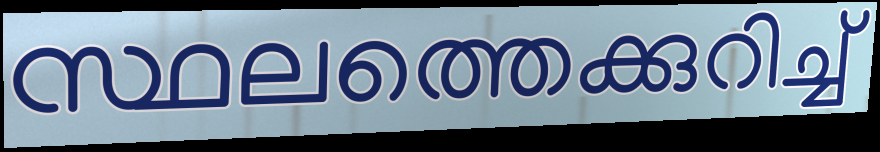
സ്ഥലത്തെക്കുറിച്ച്